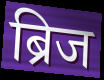
ब्रिज